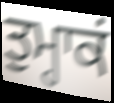
ਤੁਮ੍ਹਾਕਂ